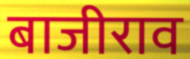
बाजीराव